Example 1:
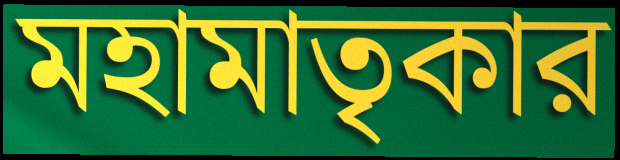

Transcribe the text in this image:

মহামাতৃকার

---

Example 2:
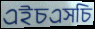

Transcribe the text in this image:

এইচএসচি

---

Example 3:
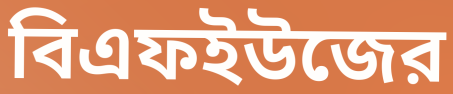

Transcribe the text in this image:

বিএফইউজের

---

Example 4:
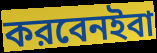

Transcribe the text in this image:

করবেনইবা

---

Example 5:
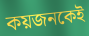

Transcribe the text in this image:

কয়জনকেই